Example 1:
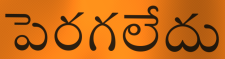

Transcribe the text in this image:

పెరగలేదు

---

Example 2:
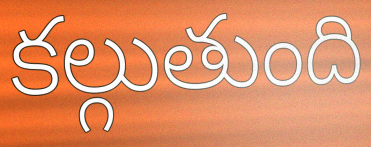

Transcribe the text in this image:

కల్గుతుంది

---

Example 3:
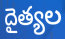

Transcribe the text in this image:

దైత్యల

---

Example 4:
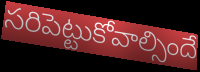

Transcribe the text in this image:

సరిపెట్టుకోవాల్సిందే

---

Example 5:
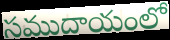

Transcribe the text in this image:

సముదాయంలో